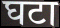
घटा